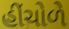
હીંચોળે